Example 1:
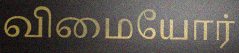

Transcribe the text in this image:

விமையோர்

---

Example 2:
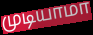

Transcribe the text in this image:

முடியாமா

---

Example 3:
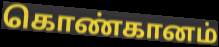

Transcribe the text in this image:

கொண்கானம்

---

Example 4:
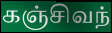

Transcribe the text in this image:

கஞ்சிவந்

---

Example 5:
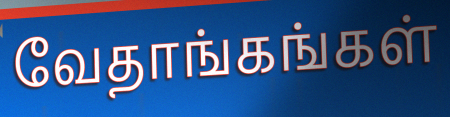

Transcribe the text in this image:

வேதாங்கங்கள்